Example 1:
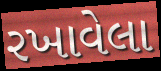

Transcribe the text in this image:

રખાવેલા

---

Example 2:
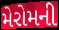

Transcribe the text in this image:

મેરોમની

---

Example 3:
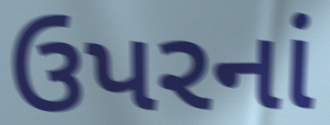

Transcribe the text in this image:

ઉપરનાં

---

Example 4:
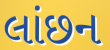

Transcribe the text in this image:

લાંછન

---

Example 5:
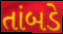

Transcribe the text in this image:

તાંબડે